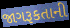
જાગરૂકતાની